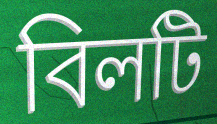
বিলটি